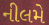
નીલમે